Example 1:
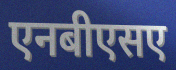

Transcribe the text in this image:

एनबीएसए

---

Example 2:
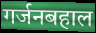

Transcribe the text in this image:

गर्जनबहाल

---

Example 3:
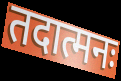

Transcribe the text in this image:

तदात्मनः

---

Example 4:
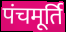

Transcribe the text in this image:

पंचमूर्ति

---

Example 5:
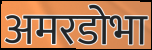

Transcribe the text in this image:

अमरडोभा